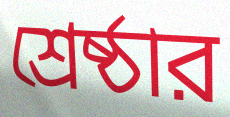
শ্রেষ্ঠার